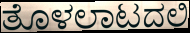
ತೊಳಲಾಟದಲಿ